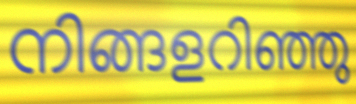
നിങ്ങളറിഞ്ഞു